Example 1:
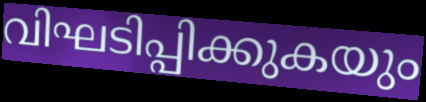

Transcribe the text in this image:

വിഘടിപ്പിക്കുകയും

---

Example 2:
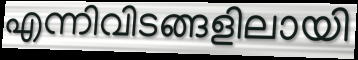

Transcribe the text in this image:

എന്നിവിടങ്ങളിലായി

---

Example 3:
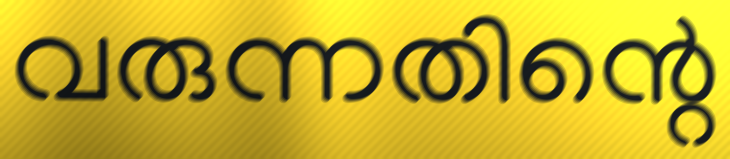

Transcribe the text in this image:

വരുന്നതിന്റെ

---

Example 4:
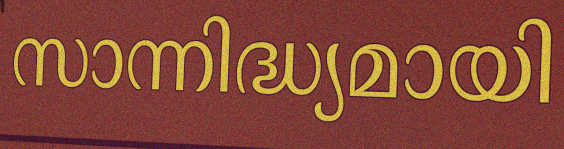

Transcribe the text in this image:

സാന്നിദ്ധ്യമായി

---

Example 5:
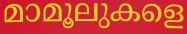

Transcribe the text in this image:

മാമൂലുകളെ